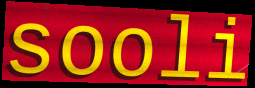
sooli